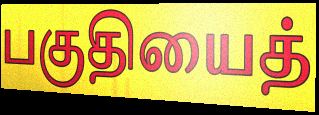
பகுதியைத்